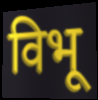
विभू